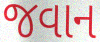
જવાન